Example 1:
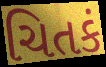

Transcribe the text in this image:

ચિતકં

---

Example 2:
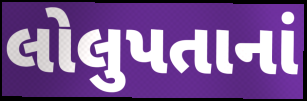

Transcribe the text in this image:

લોલુપતાનાં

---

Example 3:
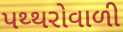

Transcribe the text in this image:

પથ્થરોવાળી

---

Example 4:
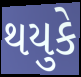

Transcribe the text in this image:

થયુકે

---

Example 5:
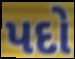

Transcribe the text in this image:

પદો